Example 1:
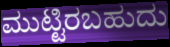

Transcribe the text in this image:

ಮುಟ್ಟಿರಬಹುದು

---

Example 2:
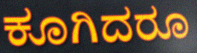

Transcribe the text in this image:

ಕೂಗಿದರೂ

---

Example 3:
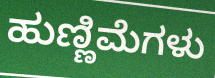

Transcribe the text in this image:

ಹುಣ್ಣಿಮೆಗಳು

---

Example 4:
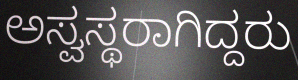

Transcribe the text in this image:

ಅಸ್ವಸ್ಥರಾಗಿದ್ದರು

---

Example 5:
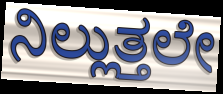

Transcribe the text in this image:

ನಿಲ್ಲುತ್ತಲೇ